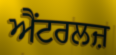
ਐਂਟਰਲਜ਼